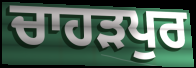
ਚਾਹਡ਼ਪੁਰ